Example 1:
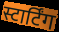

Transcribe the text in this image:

स्टार्टिंग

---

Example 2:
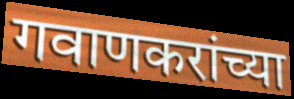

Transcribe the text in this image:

गवाणकरांच्या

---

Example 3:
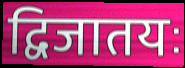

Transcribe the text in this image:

द्विजातयः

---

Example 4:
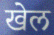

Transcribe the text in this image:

खेल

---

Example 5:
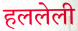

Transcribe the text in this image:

हललेली